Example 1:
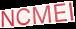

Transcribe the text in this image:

NCMEI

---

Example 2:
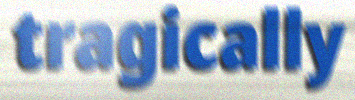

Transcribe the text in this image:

tragically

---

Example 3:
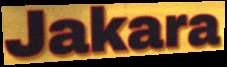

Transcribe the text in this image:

Jakara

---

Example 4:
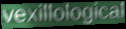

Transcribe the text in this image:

vexillological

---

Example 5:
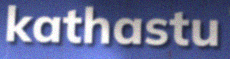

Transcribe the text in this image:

kathastu